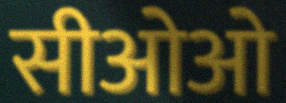
सीओओ